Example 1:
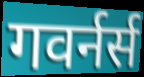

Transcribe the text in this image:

गवर्नर्स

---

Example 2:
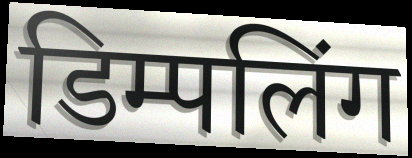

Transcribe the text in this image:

डिम्पलिंग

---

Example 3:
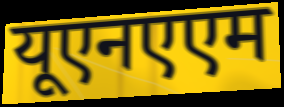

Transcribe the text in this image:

यूएनएएम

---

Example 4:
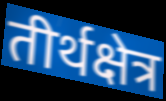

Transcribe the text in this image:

तीर्थक्षेत्र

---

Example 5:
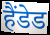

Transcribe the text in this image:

हैंडेड